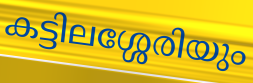
കട്ടിലശ്ശേരിയും